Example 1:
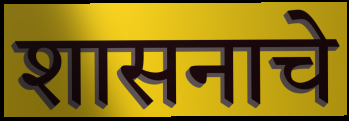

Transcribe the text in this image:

शासनाचे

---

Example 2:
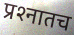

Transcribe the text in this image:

प्रश्नातच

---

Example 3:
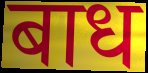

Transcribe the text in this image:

बाध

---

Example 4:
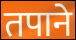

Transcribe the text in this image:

तपाने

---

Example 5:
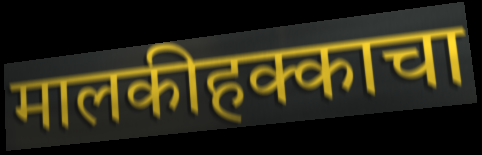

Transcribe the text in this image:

मालकीहक्काचा